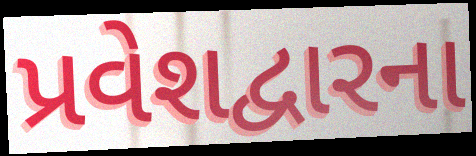
પ્રવેશદ્વારના